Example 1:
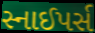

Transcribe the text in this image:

સ્નાઈપર્સ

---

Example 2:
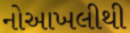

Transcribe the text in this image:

નોઆખલીથી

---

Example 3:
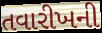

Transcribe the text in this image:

તવારીખની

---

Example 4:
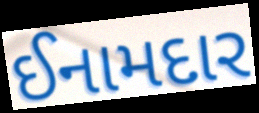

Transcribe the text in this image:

ઈનામદાર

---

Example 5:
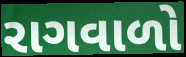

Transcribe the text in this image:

રાગવાળો